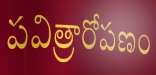
పవిత్రారోపణం